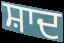
ਸ਼ਾਦ